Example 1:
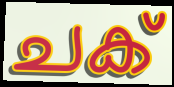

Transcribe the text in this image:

ചക്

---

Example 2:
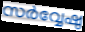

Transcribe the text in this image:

സർവ്വേഷു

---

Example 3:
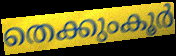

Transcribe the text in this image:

തെക്കുംകൂർ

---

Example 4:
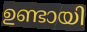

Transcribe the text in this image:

ഉണ്ടായി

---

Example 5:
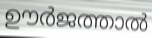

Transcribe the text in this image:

ഊർജത്താൽ